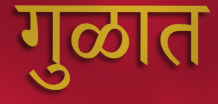
गुळात